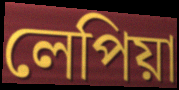
লেপিয়া